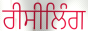
ਰੀਸੀਲਿੰਗ